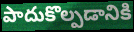
పాదుకొల్పడానికి